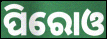
ପିରୋଓ